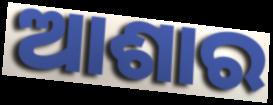
ଆଶାର